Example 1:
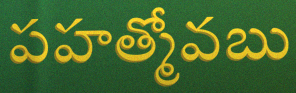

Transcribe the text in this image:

పహత్మోవబు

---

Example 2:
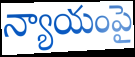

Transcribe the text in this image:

న్యాయంపై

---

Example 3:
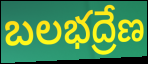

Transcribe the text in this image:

బలభద్రేణ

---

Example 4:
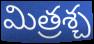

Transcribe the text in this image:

మిత్రశ్చ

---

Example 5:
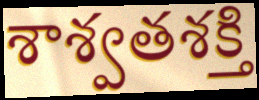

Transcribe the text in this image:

శాశ్వతశక్తి